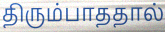
திரும்பாததால்